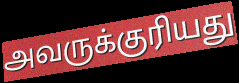
அவருக்குரியது